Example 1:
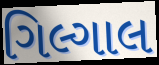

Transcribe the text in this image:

ગિલ્ગાલ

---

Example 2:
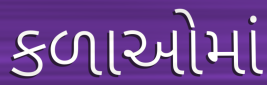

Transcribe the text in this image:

કળાઓમાં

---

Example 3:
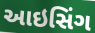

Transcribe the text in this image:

આઇસિંગ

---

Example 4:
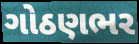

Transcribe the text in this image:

ગોઠણભર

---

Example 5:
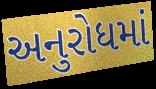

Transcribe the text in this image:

અનુરોધમાં